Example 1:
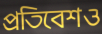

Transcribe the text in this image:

প্রতিবেশও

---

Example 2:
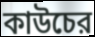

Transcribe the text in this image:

কাউচের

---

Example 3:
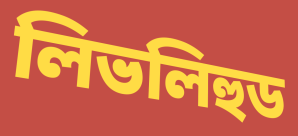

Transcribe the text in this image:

লিভলিহুড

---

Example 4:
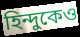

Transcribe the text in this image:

হিন্দুকেও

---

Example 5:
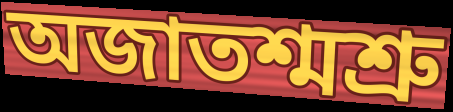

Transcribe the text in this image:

অজাতশ্মশ্রু